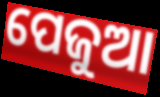
ପେଜୁଆ